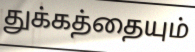
துக்கத்தையும்